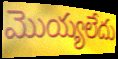
మొయ్యలేదు